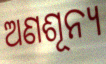
ଅଣଶୂନ୍ୟ